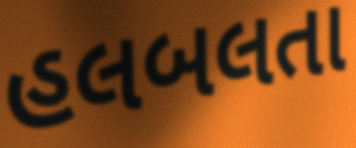
હલબલતા